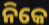
ନିକେ